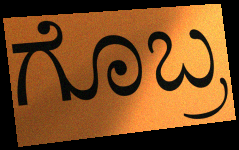
ಗೊಬ್ರ